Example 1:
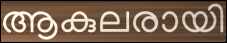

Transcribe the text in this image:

ആകുലരായി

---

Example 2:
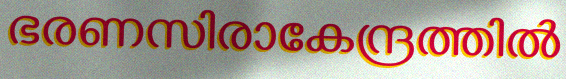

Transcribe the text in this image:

ഭരണസിരാകേന്ദ്രത്തിൽ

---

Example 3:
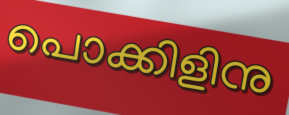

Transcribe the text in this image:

പൊക്കിളിനു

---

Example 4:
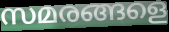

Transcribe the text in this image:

സമരങ്ങളെ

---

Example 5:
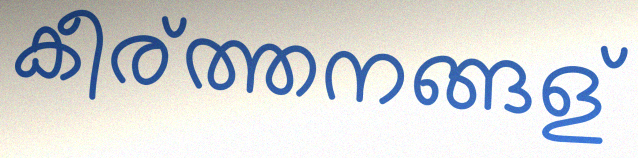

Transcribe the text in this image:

കീര്ത്തനങ്ങള്